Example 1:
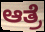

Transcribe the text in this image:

ಆತ್ರೆ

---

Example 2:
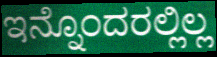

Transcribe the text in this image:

ಇನ್ನೊಂದರಲ್ಲಿಲ್ಲ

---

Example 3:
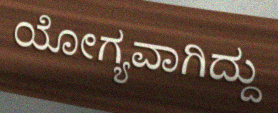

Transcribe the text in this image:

ಯೋಗ್ಯವಾಗಿದ್ದು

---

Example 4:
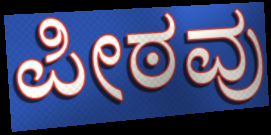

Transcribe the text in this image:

ಪೀಠವು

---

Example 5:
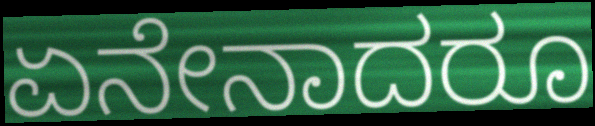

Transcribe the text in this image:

ಏನೇನಾದರೂ